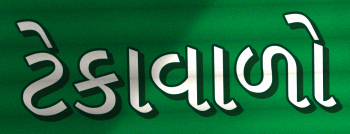
ટેકાવાળો